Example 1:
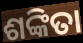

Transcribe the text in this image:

ଶଙ୍କିତା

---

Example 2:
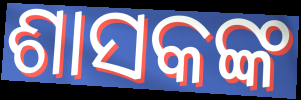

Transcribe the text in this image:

ଶାସକଙ୍କ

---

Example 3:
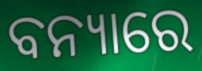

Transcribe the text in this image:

ବନ୍ୟାରେ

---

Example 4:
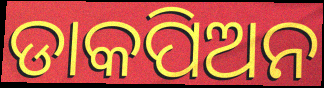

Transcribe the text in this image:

ଡାକପିଅନ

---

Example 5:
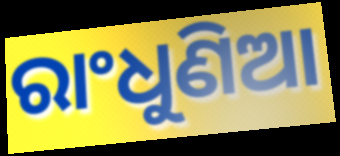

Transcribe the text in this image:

ରାଂଧୁଣିଆ